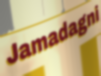
Jamadagni